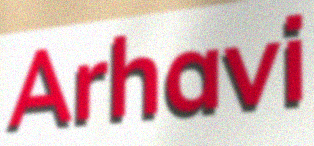
Arhavi